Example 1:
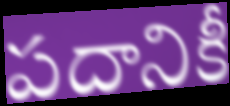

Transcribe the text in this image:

పదానికీ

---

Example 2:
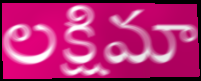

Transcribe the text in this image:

లక్షిమా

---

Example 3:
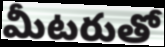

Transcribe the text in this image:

మీటరుతో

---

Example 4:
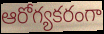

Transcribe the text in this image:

ఆరోగ్యకరంగా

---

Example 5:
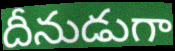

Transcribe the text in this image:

దీనుడుగా